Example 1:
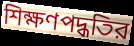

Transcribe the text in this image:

শিক্ষণপদ্ধতির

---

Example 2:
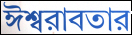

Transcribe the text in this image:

ঈশ্বরাবতার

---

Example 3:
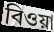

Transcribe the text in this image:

বিওয়া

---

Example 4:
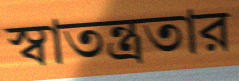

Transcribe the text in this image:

স্বাতন্ত্রতার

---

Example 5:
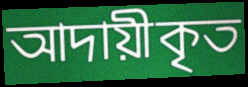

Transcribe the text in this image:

আদায়ীকৃত